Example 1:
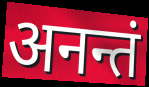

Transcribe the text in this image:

अनन्तं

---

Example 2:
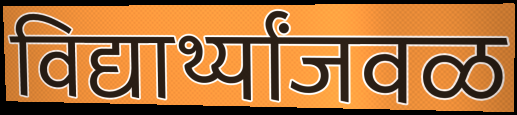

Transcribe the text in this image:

विद्यार्थ्यांजवळ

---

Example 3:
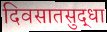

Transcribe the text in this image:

दिवसातसुद्धा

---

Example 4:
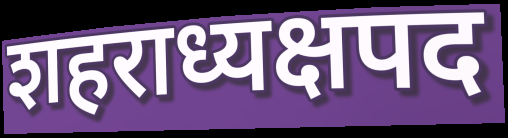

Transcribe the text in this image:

शहराध्यक्षपद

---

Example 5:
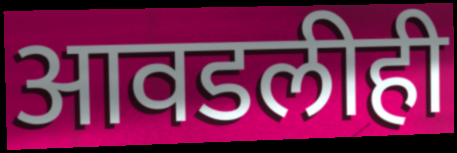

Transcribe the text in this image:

आवडलीही